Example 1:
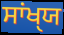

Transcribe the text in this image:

ਸਾਂਖੑਯ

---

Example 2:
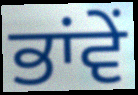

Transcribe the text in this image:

ਭਾਂਵੇਂ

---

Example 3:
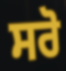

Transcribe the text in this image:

ਸਰੋ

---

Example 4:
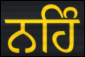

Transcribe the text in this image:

ਨਹਿੰ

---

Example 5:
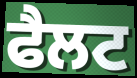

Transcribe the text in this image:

ਫੈਲਟ